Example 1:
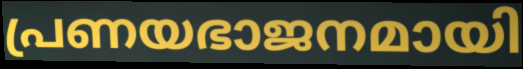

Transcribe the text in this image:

പ്രണയഭാജനമായി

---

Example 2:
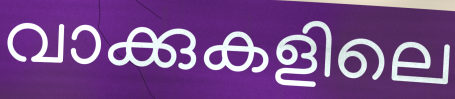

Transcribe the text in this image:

വാക്കുകളിലെ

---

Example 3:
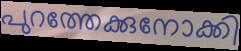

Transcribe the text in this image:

പുറത്തേക്കുനോക്കി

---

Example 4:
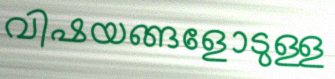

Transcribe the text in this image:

വിഷയങ്ങളോടുള്ള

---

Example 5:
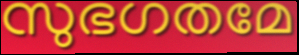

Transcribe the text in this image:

സുഭഗതമേ